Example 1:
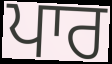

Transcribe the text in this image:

ਪਾਰ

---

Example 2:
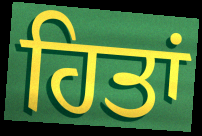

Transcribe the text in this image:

ਹਿਤਾਂ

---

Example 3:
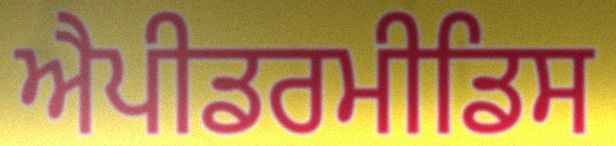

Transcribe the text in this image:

ਐਪੀਡਰਮੀਡਿਸ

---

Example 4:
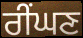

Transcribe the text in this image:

ਰੀਂਘਣ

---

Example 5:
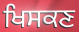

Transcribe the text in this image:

ਖਿਸਕਣ